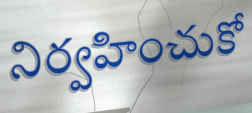
నిర్వహించుకో